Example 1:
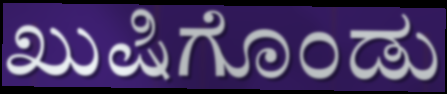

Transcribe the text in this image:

ಖುಷಿಗೊಂಡು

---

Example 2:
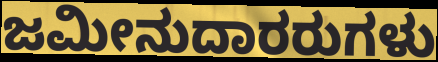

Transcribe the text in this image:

ಜಮೀನುದಾರರುಗಳು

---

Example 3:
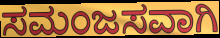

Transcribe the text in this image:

ಸಮಂಜಸವಾಗಿ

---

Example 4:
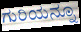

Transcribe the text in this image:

ಗುರಿಯನ್ನೂ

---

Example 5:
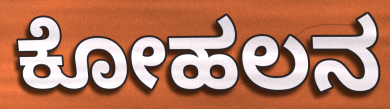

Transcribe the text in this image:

ಕೋಹಲನ